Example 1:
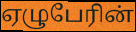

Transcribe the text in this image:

ஏழுபேரின்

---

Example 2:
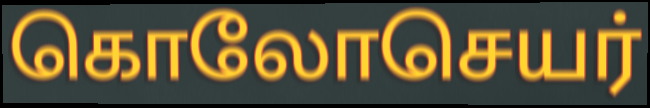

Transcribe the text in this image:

கொலோசெயர்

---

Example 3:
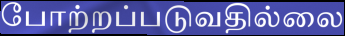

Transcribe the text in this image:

போற்றப்படுவதில்லை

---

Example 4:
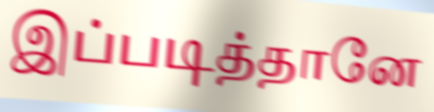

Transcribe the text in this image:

இப்படித்தானே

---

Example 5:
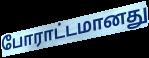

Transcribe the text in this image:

போராட்டமானது